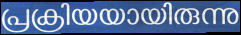
പ്രക്രിയയായിരുന്നു